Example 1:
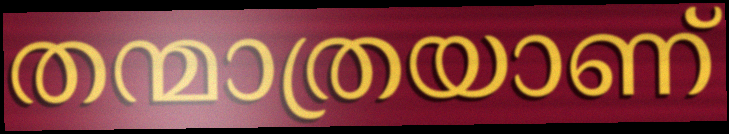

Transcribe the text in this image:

തന്മാത്രയാണ്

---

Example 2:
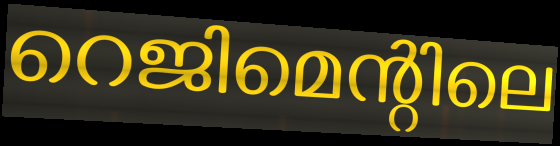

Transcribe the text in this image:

റെജിമെന്റിലെ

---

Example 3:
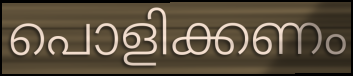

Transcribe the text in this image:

പൊളിക്കണം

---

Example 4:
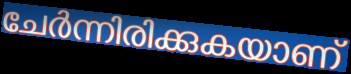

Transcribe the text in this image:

ചേർന്നിരിക്കുകയാണ്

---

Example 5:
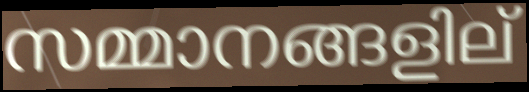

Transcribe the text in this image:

സമ്മാനങ്ങളില്